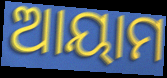
ଆୟାମ